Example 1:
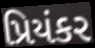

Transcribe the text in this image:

પ્રિયંકર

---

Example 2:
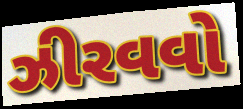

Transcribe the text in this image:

ઝીરવવો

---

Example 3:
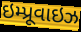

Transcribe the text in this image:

ઇમ્પ્રૂવાઇઝ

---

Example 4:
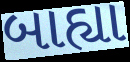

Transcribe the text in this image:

બાહ્યા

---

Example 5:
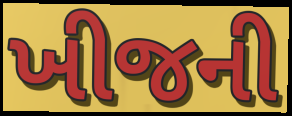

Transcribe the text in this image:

ખીજની